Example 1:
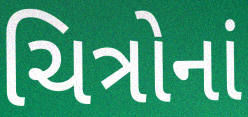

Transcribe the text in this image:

ચિત્રોનાં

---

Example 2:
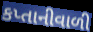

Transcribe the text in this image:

કપ્તાનીવાળી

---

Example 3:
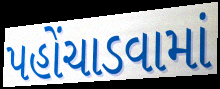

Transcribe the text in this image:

પહોંચાડવામાં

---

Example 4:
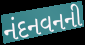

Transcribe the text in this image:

નંદનવનની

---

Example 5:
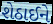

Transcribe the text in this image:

શેઠાઈને